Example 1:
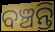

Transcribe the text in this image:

ବଞ୍ଚନ୍ତି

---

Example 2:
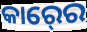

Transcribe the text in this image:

କାର୍‍ରେ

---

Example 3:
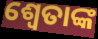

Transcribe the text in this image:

ଶ୍ଵେତାଙ୍କ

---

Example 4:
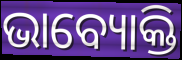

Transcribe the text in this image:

ଭାବ୍ୟୋକ୍ତି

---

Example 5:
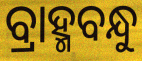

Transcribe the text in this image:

ବ୍ରାହ୍ମବନ୍ଧୁ